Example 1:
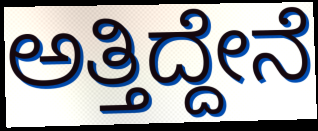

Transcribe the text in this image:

ಅತ್ತಿದ್ದೇನೆ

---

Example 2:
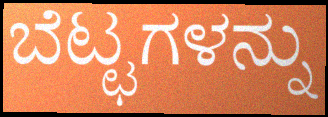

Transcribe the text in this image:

ಬೆಟ್ಟಗಳನ್ನು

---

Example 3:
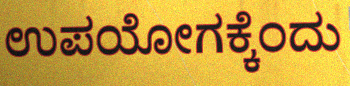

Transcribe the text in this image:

ಉಪಯೋಗಕ್ಕೆಂದು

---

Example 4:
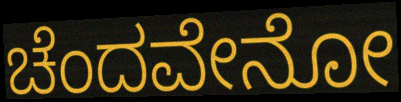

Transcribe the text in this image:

ಚೆಂದವೇನೋ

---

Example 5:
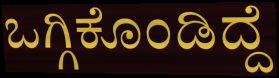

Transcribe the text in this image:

ಒಗ್ಗಿಕೊಂಡಿದ್ದೆ